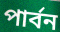
পার্বন